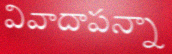
వివాదాపన్నా